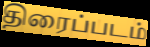
திரைப்படம்